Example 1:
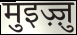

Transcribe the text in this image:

मुइज़्ज़ु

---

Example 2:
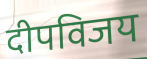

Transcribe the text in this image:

दीपविजय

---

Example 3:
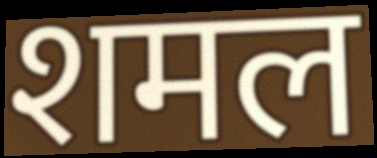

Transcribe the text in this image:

शमल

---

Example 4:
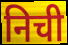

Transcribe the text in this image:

निची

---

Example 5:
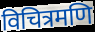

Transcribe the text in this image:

विचित्रमणि